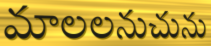
మాలలనుచును